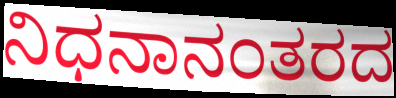
ನಿಧನಾನಂತರದ